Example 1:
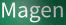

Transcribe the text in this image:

Magen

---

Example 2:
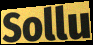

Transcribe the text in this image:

Sollu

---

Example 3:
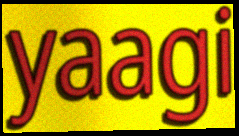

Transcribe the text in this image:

yaagi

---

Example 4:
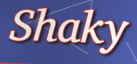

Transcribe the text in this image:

Shaky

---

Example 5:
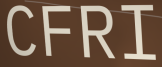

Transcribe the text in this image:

CFRI